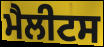
ਮੈਲੀਟਸ